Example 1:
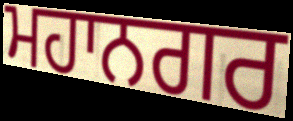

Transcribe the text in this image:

ਮਹਾਨਗਰ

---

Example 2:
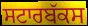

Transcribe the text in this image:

ਸਟਾਰਬੱਕਸ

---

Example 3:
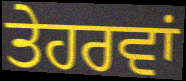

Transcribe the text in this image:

ਤੇਹਰਵਾਂ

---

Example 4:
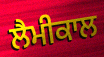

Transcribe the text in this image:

ਲੈਮੀਕਾਲ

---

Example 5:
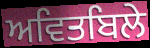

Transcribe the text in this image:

ਅਵਿਤਬਿਲੇ